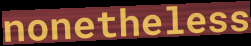
nonetheless